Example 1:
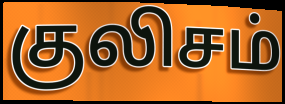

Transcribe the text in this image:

குலிசம்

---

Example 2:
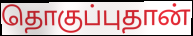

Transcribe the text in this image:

தொகுப்புதான்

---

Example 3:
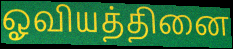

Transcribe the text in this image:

ஓவியத்தினை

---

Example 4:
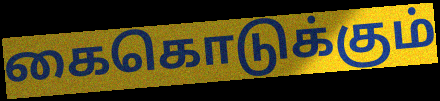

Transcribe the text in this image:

கைகொடுக்கும்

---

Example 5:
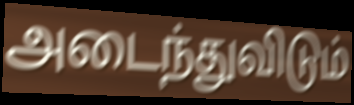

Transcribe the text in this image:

அடைந்துவிடும்